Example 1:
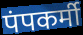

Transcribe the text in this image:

पंपकर्मी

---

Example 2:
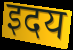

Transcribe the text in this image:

इदय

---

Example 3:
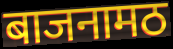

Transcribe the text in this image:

बाजनामठ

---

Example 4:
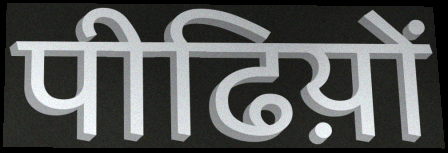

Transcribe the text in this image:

पीढिय़ों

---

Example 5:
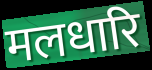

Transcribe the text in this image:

मलधारि